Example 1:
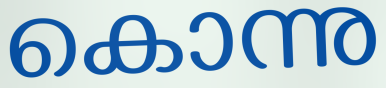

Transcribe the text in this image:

കൊന്നു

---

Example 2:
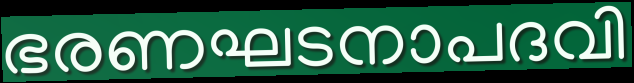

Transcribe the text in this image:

ഭരണഘടനാപദവി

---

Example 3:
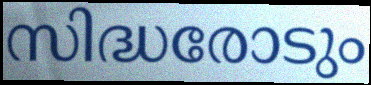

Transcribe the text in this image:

സിദ്ധരോടും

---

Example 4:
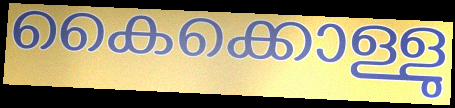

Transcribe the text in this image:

കൈക്കൊള്ളു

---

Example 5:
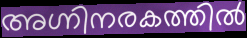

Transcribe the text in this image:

അഗ്നിനരകത്തിൽ